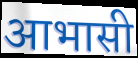
आभासी